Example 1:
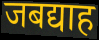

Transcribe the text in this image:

जबद्याह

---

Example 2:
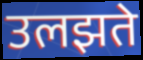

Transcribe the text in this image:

उलझते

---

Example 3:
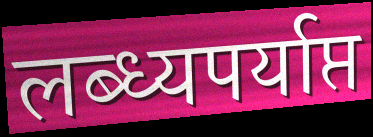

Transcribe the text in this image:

लब्ध्यपर्याप्त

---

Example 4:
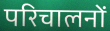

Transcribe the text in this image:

परिचालनों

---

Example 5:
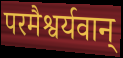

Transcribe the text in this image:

परमैश्वर्यवान्